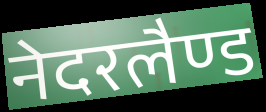
नेदरलैण्ड